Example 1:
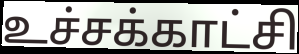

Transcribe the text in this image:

உச்சக்காட்சி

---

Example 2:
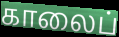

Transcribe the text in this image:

காலைப்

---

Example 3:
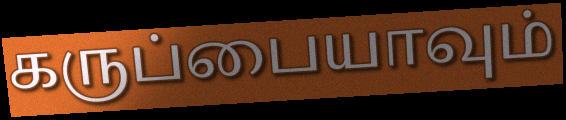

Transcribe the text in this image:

கருப்பையாவும்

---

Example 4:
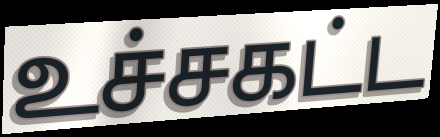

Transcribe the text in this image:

உச்சகட்ட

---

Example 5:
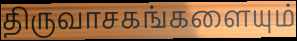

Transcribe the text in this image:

திருவாசகங்களையும்